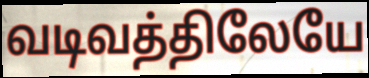
வடிவத்திலேயே